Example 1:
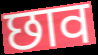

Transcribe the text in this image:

छाव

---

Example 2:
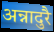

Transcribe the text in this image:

अन्नादुरै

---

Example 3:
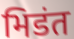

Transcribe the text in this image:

भिडंत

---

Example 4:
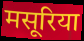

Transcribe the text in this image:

मसूरिया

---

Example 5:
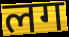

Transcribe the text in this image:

लग